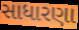
સાધારણા